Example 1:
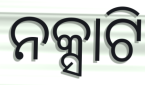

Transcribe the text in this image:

ନକ୍ସାଟି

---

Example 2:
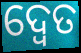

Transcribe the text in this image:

ଦ୍ବେତ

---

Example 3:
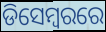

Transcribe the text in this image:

ଡିସେମ୍ବରରେ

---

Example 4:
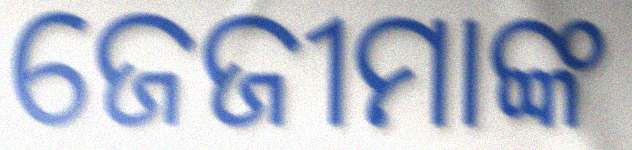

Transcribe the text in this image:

ଜେଜୀମାଙ୍କ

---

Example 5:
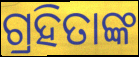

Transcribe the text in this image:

ଗ୍ରହିତାଙ୍କ